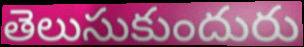
తెలుసుకుందురు